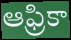
ఆఫ్రికా